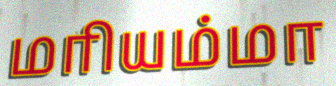
மரியம்மா